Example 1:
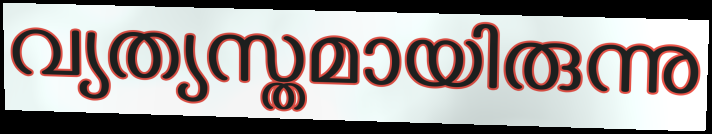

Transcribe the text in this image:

വ്യത്യസ്തമായിരുന്നു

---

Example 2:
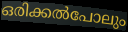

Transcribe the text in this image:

ഒരിക്കൽപോലും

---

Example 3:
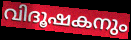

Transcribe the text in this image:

വിദൂഷകനും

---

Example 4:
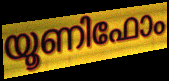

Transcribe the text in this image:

യൂണിഫോം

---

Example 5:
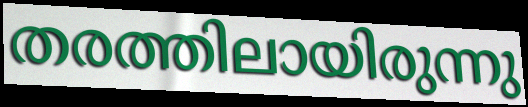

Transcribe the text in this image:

തരത്തിലായിരുന്നു